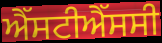
ਐੱਸਟੀਐੱਸਸੀ